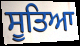
ਸੂਤਿਆ